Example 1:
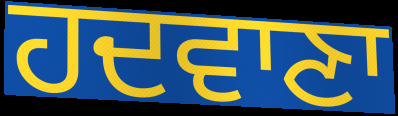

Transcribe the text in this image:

ਹਦਵਾਣਾ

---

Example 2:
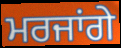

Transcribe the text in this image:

ਮਰਜਾਂਗੇ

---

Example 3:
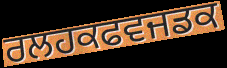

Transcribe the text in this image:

ਰਲਹਕਫਵਜਡਕ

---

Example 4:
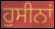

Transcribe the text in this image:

ਹੁਸੀਨਾਂ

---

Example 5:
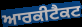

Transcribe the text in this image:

ਆਰਕੀਟੈਕਟ